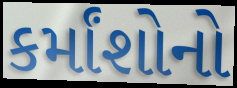
કર્માંશોનો